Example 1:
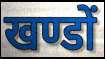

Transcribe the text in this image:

खण्डों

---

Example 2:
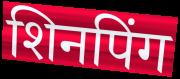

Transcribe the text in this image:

शिनपिंग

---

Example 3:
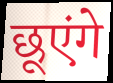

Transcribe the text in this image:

छूएंगे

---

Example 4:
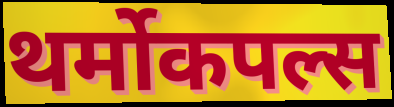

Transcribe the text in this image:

थर्मोकपल्स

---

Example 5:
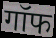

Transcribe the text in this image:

गॉफ